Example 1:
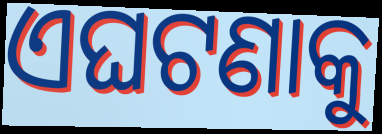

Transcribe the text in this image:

ଏଘଟଣାକୁ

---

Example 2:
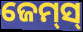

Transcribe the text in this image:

ଜେମ୍‌ସ୍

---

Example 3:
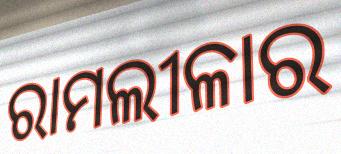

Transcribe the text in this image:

ରାମଲୀଳାର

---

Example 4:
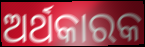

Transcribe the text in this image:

ଅର୍ଥକାରକ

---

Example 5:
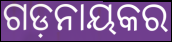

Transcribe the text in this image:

ଗଡ଼ନାୟକର